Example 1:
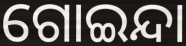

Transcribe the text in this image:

ଗୋଇନ୍ଦା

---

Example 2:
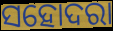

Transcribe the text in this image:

ସହୋଦରା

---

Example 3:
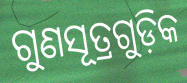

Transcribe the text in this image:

ଗୁଣସୂତ୍ରଗୁଡ଼ିକ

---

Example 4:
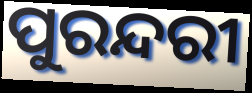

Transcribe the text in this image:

ପୁରନ୍ଦରୀ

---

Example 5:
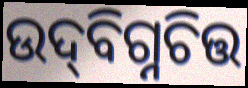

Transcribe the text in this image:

ଉଦ୍‌ବିଗ୍ନଚିତ୍ତ